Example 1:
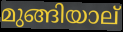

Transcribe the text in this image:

മുങ്ങിയാല്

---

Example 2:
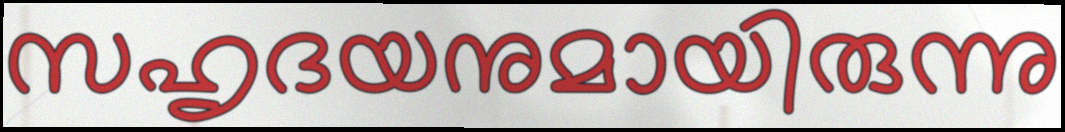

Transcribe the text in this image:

സഹൃദയനുമായിരുന്നു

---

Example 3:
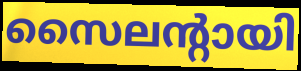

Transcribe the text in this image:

സൈലന്റായി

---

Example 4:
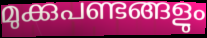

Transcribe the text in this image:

മുക്കുപണ്ടങ്ങളും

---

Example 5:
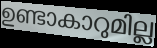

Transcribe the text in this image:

ഉണ്ടാകാറുമില്ല